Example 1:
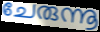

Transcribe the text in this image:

ചേരുന്നൂ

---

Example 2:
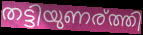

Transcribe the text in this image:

തട്ടിയുണര്ത്തി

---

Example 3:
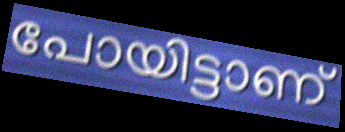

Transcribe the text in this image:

പോയിട്ടാണ്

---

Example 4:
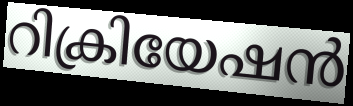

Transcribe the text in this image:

റിക്രിയേഷൻ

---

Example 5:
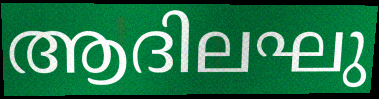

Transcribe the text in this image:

ആദിലഘു